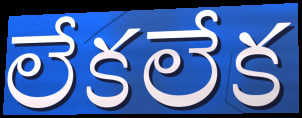
లేకలేక